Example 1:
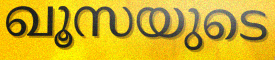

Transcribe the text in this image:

ഖൂസയുടെ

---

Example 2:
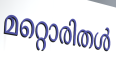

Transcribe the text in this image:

മറ്റൊരിതൾ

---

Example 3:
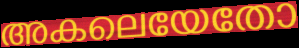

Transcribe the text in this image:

അകലെയേതോ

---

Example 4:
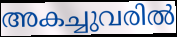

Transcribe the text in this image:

അകച്ചുവരിൽ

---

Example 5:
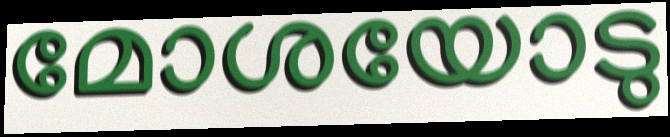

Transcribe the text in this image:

മോശയോടു